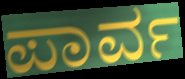
ಪಾರ್ವ